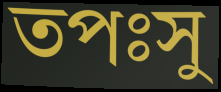
তপঃসু